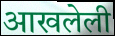
आखलेली